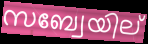
സബ്വേയില്